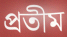
প্রতীম